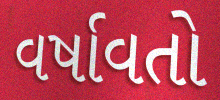
વર્ષાવતો